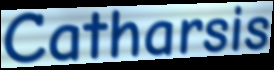
Catharsis